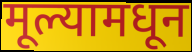
मूल्यामधून